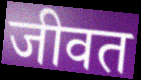
जीवत